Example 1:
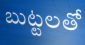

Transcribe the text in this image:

బుట్టలతో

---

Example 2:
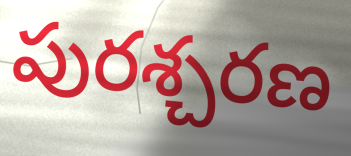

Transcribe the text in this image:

పురశ్చరణ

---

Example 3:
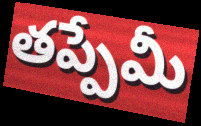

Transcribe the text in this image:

తప్పేమీ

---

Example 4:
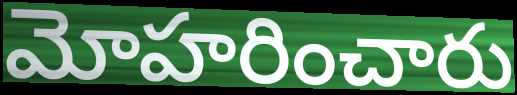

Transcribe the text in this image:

మోహరించారు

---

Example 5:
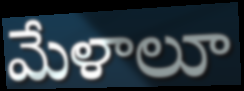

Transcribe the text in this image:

మేళాలూ